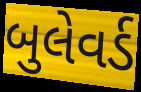
બુલેવર્ડ